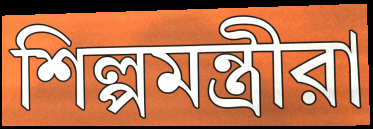
শিল্পমন্ত্রীরা